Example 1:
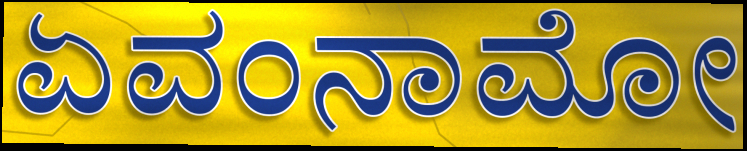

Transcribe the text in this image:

ಏವಂನಾಮೋ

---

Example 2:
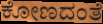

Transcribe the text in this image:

ಕೋಣದಂತೆ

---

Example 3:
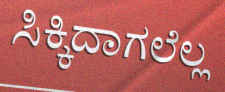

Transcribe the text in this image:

ಸಿಕ್ಕಿದಾಗಲೆಲ್ಲ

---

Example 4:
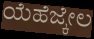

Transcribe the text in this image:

ಯೆಹೆಜ್ಕೇಲ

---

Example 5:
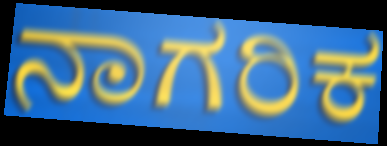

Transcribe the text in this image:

ನಾಗರಿಕ